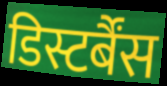
डिस्टर्बैंस